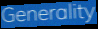
Generality